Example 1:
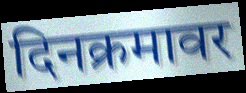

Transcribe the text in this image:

दिनक्रमावर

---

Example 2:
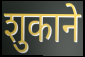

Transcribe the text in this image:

शुकाने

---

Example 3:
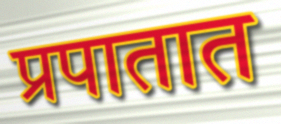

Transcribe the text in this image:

प्रपातात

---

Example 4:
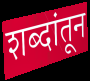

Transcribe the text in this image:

शब्दांतून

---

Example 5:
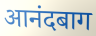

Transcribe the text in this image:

आनंदबाग